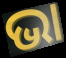
ଭା